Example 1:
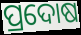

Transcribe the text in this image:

ପ୍ରଦୋଷ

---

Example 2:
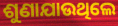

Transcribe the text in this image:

ଶୁଣାଯାଉଥିଲେ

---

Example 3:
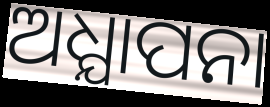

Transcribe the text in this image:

ଅଧ୍ଯାପନା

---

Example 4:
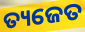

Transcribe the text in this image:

ତ୍ୟଜେତ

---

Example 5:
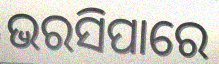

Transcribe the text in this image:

ଭରସିପାରେ